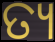
ତ୍ୟ